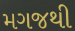
મગજથી